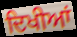
ਦਿਖੀਆਂ